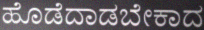
ಹೊಡೆದಾಡಬೇಕಾದ